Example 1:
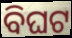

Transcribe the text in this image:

ବିଘଟ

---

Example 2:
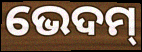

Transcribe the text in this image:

ଭେଦମ୍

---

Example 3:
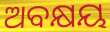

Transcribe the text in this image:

ଅବକ୍ଷୟ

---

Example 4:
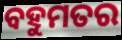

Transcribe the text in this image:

ବହୁମତର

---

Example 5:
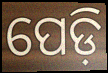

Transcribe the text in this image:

ପେଡ଼ି